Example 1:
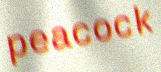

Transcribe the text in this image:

peacock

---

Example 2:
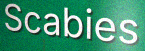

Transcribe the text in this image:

Scabies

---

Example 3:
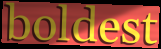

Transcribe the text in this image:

boldest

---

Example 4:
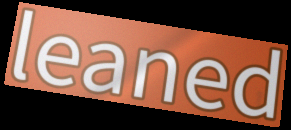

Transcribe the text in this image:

leaned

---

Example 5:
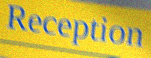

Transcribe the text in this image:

Reception